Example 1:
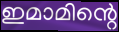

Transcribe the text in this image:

ഇമാമിന്റെ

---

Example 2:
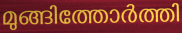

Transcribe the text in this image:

മുങ്ങിത്തോർത്തി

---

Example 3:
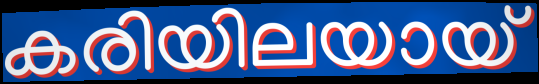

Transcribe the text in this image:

കരിയിലയായ്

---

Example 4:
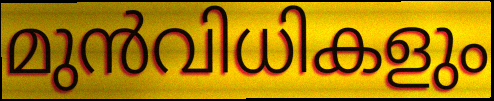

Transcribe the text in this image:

മുൻവിധികളും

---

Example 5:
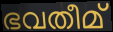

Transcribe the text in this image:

ഭവതീമ്